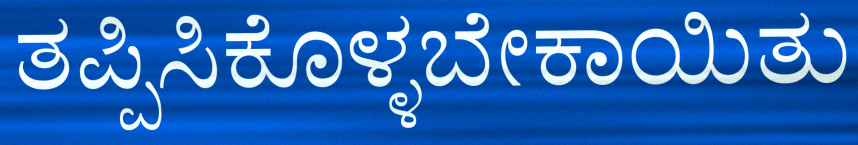
ತಪ್ಪಿಸಿಕೊಳ್ಳಬೇಕಾಯಿತು